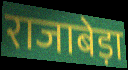
राजाबेड़ा